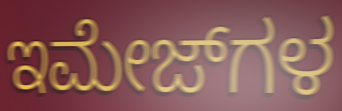
ಇಮೇಜ್‌ಗಳ